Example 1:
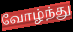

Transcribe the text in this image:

வோழ்ந்து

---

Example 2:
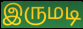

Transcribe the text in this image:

இருமடி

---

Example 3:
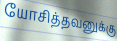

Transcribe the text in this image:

யோசித்தவனுக்கு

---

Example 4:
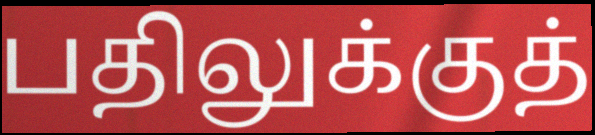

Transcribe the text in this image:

பதிலுக்குத்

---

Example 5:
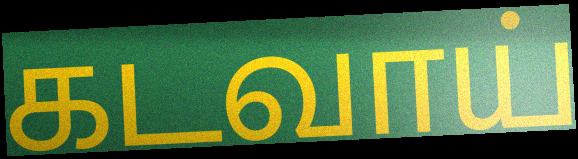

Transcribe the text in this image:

கடவாய்